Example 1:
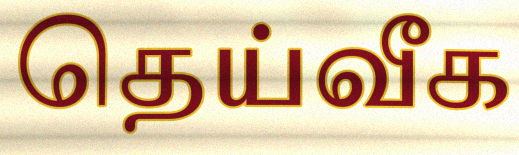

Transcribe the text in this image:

தெய்வீக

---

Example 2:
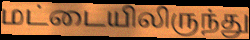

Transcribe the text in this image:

மட்டையிலிருந்து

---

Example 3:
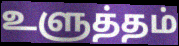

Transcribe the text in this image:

உளுத்தம்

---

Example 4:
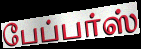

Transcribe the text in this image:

பேப்பர்ஸ்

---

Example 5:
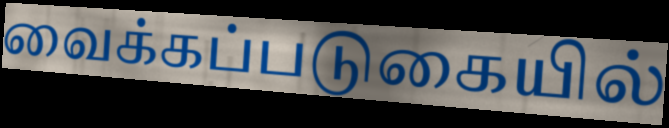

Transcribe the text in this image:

வைக்கப்படுகையில்